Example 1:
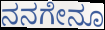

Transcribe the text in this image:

ನನಗೇನೂ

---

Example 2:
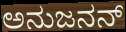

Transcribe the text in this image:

ಅನುಜನನ್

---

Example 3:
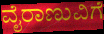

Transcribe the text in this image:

ವೈರಾಣುವಿಗೆ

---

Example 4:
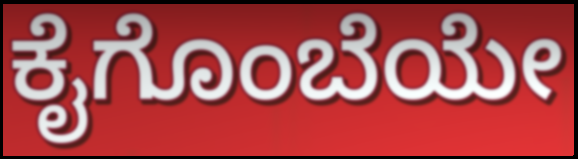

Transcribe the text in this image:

ಕೈಗೊಂಬೆಯೇ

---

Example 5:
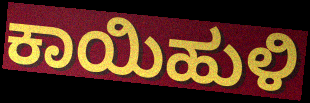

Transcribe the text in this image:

ಕಾಯಿಹುಳಿ